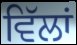
ਵਿੱਲਾਂ